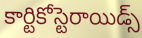
కార్టికోస్టెరాయిడ్స్